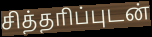
சித்தரிப்புடன்